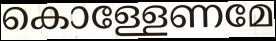
കൊള്ളേണമേ